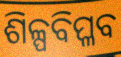
ଶିଳ୍ପବିପ୍ଳବ